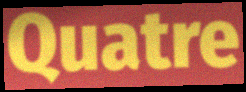
Quatre